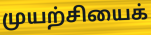
முயற்சியைக்